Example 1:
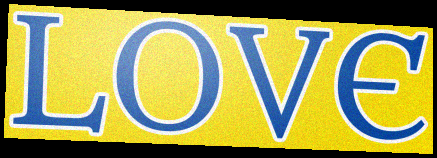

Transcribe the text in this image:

LOVE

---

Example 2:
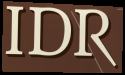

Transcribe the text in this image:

IDR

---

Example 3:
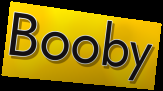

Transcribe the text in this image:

Booby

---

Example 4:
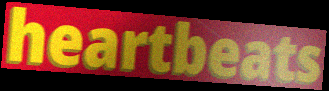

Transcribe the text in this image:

heartbeats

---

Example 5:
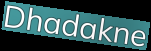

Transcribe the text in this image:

Dhadakne